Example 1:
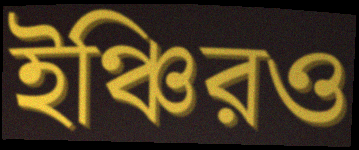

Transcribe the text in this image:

ইঞ্চিরও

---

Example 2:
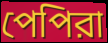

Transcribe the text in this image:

পেপিরা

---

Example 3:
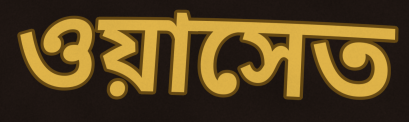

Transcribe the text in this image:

ওয়াসেত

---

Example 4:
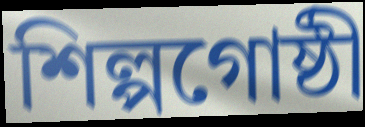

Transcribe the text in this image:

শিল্পগোষ্ঠী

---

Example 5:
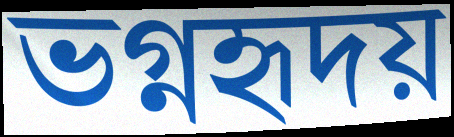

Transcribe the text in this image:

ভগ্নহৃদয়